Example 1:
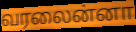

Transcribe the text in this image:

வரலைன்னா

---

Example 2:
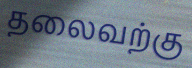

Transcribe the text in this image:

தலைவற்கு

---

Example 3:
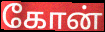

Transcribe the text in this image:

கோன்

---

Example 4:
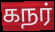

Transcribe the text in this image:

கநர்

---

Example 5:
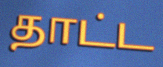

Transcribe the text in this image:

தாட்ட